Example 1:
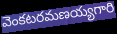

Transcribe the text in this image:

వెంకటరమణయ్యగారి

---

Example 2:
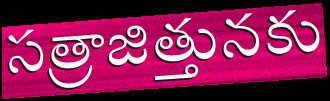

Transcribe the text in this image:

సత్రాజిత్తునకు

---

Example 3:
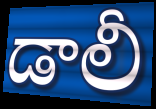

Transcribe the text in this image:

డాలీ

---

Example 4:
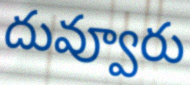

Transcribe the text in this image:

దువ్వూరు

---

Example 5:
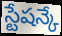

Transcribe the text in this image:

స్టేషన్కే